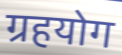
ग्रहयोग